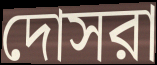
দোসরা